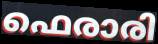
ഫെരാരി